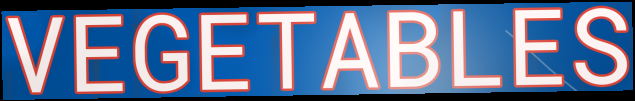
VEGETABLES